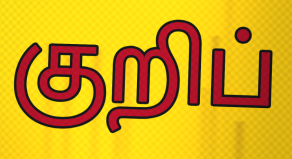
குறிப்